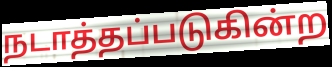
நடாத்தப்படுகின்ற